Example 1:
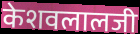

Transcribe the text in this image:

केशवलालजी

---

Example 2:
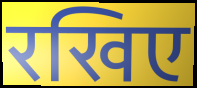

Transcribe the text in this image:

रखिए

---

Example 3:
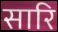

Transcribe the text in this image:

सारि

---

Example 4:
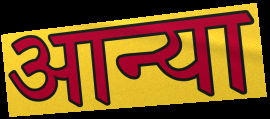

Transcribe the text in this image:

आन्या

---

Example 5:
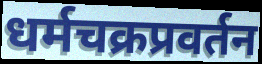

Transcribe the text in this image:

धर्मचक्रप्रवर्तन